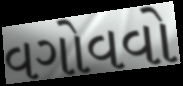
વગોવવો